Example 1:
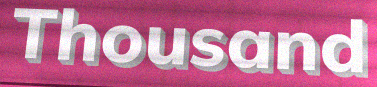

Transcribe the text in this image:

Thousand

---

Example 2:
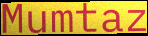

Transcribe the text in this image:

Mumtaz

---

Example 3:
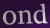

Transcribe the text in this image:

ond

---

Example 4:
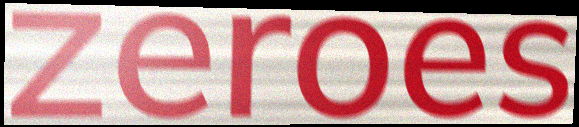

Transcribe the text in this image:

zeroes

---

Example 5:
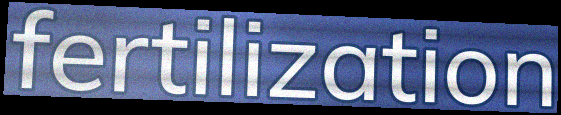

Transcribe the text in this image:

fertilization